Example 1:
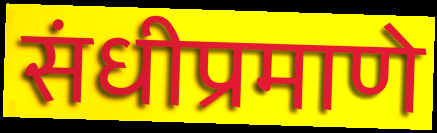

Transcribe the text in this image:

संधीप्रमाणे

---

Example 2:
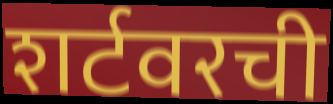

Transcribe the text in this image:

शर्टवरची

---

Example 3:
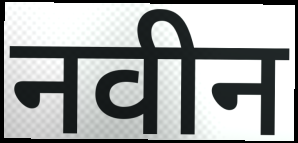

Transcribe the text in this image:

नवीन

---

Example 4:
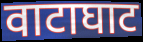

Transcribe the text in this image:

वाटाघाट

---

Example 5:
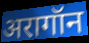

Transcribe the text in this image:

अरागॉन